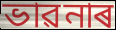
ভাৱনাৰ